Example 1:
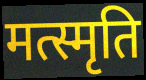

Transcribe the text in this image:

मत्स्मृति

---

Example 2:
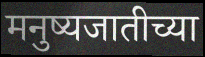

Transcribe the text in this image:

मनुष्यजातीच्या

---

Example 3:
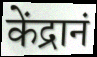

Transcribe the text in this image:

केंद्रानं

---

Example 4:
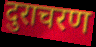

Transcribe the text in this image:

दुराचरण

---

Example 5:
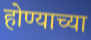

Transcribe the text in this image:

होण्‍याच्‍या